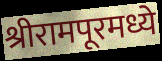
श्रीरामपूरमध्ये